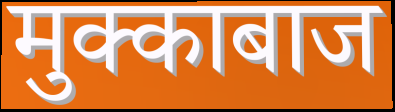
मुक्काबाज